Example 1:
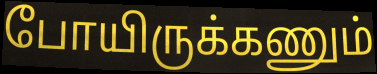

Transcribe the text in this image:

போயிருக்கணும்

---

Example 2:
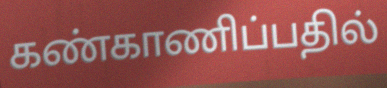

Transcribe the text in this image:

கண்காணிப்பதில்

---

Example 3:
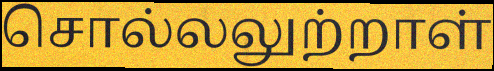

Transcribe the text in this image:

சொல்லலுற்றாள்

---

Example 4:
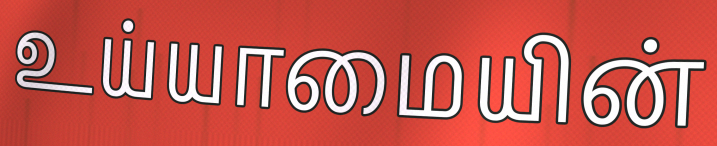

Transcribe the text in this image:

உய்யாமையின்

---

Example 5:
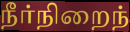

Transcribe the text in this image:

நீர்நிறைந்